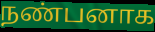
நண்பனாக